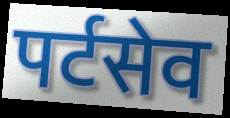
पर्टसेव